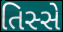
તિસ્સે